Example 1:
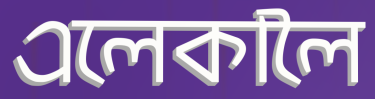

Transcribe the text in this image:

এলেকালৈ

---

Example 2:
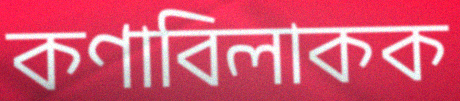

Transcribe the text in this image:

কণাবিলাকক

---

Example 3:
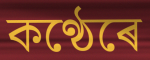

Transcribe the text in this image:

কণ্ঠেৰে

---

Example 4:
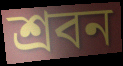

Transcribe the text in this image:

শ্ৰবন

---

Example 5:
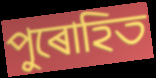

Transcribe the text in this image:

পুৰোহিত